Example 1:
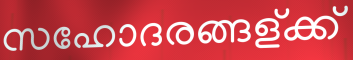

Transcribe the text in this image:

സഹോദരങ്ങള്ക്ക്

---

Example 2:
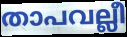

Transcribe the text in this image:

താപവല്ലീ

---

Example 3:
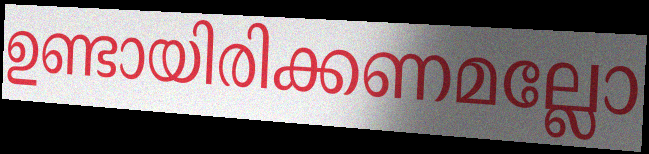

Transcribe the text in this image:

ഉണ്ടായിരിക്കണമല്ലോ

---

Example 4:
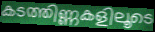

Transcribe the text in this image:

കടത്തിണ്ണകളിലൂടെ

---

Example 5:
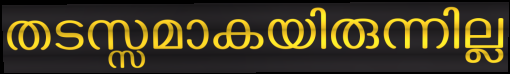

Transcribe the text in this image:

തടസ്സമാകയിരുന്നില്ല